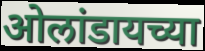
ओलांडायच्या